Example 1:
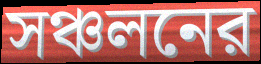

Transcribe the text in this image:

সঞ্চলনের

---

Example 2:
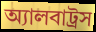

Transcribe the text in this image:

অ্যালবাট্রস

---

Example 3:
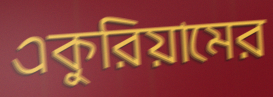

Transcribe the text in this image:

একুরিয়ামের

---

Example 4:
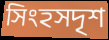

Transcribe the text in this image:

সিংহসদৃশ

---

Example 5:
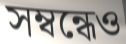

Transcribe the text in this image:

সম্বন্ধেও